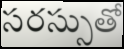
సరస్సుతో